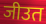
जीउत